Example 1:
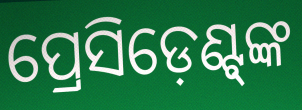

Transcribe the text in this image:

ପ୍ରେସିଡ଼େଣ୍ଟ୍‍ଙ୍କ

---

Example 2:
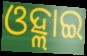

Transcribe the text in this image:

ଓହ୍ଲାଇ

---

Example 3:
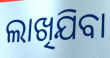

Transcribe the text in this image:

ଲାଖିଯିବା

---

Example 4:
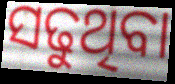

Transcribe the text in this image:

ସଢୁଥିବା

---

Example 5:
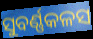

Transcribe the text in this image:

ସୁବର୍ଣ୍ଣକଳସ